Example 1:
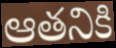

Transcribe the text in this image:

ఆతనికి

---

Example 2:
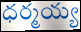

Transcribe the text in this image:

ధర్మయ్య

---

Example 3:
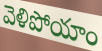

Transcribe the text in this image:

వెళిపోయాం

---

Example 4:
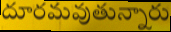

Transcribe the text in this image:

దూరమవుతున్నారు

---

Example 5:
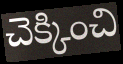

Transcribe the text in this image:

చెక్కించి